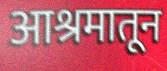
आश्रमातून